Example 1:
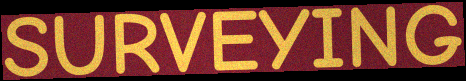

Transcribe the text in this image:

SURVEYING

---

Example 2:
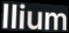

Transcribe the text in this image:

Ilium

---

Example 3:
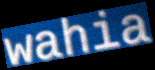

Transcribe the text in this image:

wahia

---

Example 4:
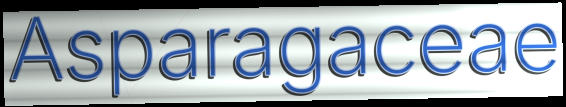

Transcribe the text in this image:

Asparagaceae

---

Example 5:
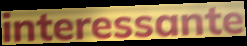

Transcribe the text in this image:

interessante